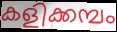
കളിക്കമ്പം